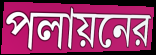
পলায়নের